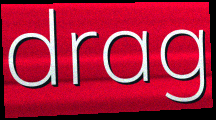
drag